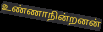
உண்ணாநின்றனன்